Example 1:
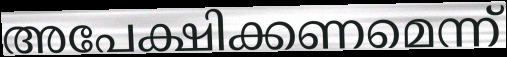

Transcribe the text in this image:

അപേക്ഷിക്കണമെന്ന്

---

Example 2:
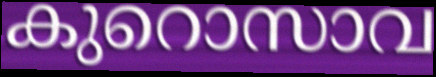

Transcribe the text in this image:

കുറൊസാവ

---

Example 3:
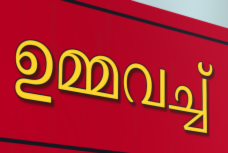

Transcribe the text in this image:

ഉമ്മവച്ച്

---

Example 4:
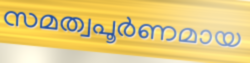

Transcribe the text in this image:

സമത്വപൂർണമായ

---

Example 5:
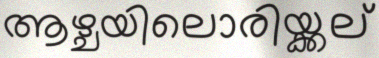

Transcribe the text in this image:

ആഴ്ചയിലൊരിയ്ക്കല്